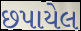
છપાયેલ